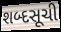
શબ્દસૂચી